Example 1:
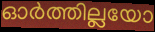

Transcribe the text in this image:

ഓർത്തില്ലയോ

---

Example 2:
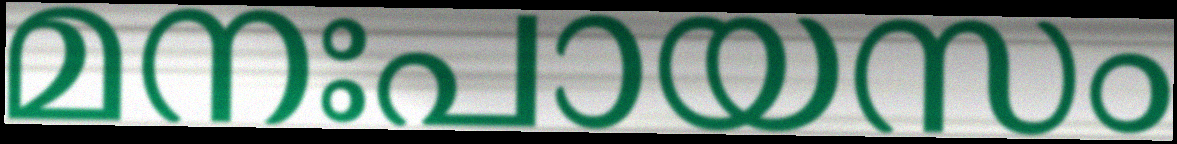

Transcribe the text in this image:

മനഃപായസം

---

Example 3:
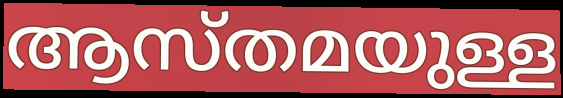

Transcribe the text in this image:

ആസ്തമയുള്ള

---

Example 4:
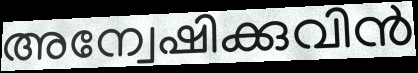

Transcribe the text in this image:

അന്വേഷിക്കുവിൻ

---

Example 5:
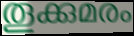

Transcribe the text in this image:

തൂക്കുമരം